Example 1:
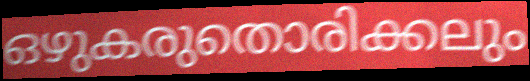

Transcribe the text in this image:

ഒഴുകരുതൊരിക്കലും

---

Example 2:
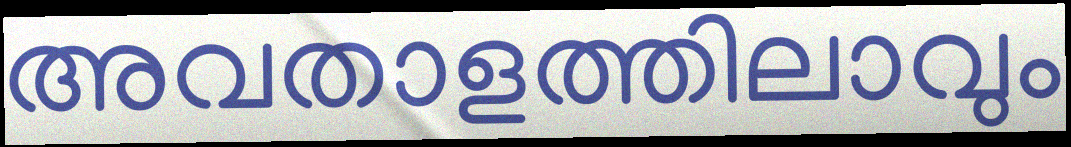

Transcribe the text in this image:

അവതാളത്തിലാവും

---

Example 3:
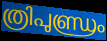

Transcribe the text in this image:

ത്രിപുണ്ഡ്രം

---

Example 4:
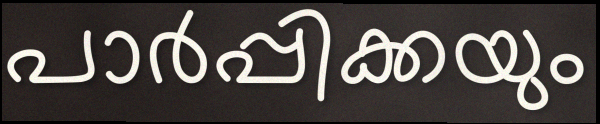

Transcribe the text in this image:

പാർപ്പിക്കയും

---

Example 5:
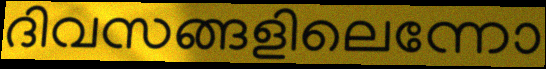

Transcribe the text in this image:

ദിവസങ്ങളിലെന്നോ